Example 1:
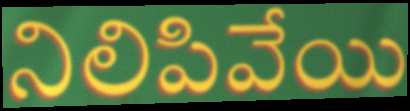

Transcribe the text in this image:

నిలిపివేయి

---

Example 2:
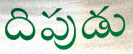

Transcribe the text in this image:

దిపుడు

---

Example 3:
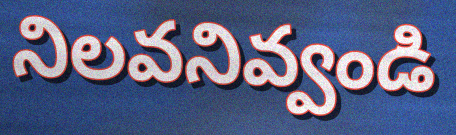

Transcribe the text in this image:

నిలవనివ్వండి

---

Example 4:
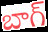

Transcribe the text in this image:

బాగ్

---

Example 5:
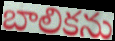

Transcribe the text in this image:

బాలికను